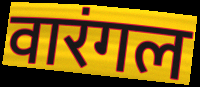
वारंगल